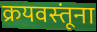
क्रयवस्तूंना